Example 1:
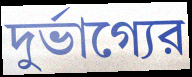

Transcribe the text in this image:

দুর্ভাগ্যের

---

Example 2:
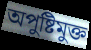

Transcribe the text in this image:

অপুষ্টিমুক্ত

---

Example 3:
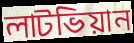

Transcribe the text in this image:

লাটভিয়ান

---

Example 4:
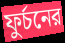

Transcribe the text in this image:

ফুর্চনের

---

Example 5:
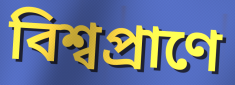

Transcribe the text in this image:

বিশ্বপ্রাণে